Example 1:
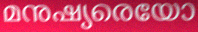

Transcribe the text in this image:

മനുഷ്യരെയോ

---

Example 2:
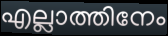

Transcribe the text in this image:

എല്ലാത്തിനേം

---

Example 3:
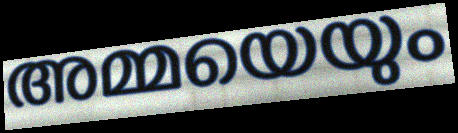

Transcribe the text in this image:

അമ്മയെയും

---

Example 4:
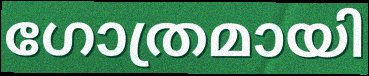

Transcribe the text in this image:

ഗോത്രമായി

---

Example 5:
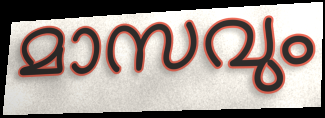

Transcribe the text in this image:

മാസവും